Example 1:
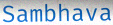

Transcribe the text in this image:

Sambhava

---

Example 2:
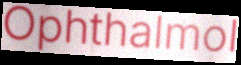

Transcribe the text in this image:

Ophthalmol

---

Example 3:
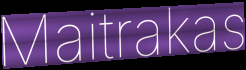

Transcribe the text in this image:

Maitrakas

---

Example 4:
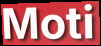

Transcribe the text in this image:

Moti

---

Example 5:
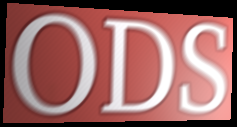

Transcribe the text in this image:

ODS